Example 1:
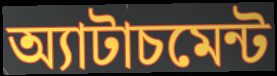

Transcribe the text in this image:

অ্যাটাচমেন্ট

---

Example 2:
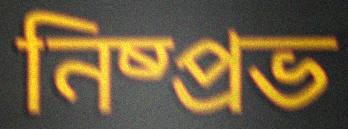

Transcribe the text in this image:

নিষ্প্রভ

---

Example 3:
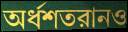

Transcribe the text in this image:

অর্ধশতরানও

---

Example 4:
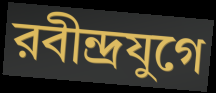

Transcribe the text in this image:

রবীন্দ্রযুগে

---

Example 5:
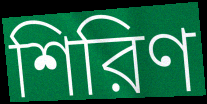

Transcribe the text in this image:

শিরিণ